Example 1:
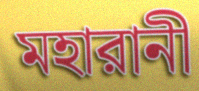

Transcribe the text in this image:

মহারানী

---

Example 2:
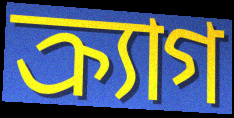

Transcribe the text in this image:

ক্র্যাগ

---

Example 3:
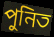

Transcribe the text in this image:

পুনিত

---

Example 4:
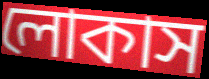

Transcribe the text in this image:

লোকাস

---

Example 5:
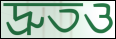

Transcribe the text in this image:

দ্রুতও